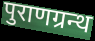
पुराणग्रन्थ